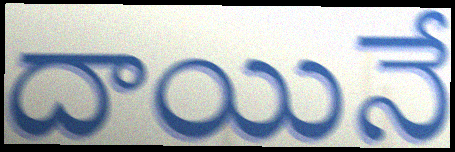
దాయినే